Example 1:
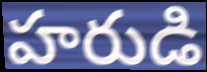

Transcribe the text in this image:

హరుడి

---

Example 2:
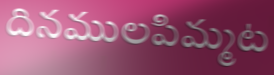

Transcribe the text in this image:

దినములపిమ్మట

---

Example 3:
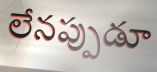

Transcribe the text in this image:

లేనప్పుడూ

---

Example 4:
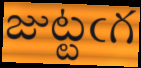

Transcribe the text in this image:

జుట్టఁగ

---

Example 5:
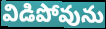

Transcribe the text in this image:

విడిపోవును